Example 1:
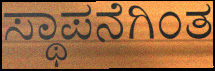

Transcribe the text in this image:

ಸ್ಥಾಪನೆಗಿಂತ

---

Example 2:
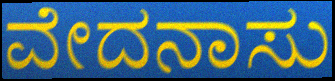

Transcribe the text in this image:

ವೇದನಾಸು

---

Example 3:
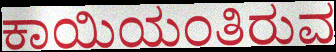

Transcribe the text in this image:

ಕಾಯಿಯಂತಿರುವ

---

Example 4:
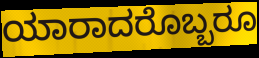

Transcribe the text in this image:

ಯಾರಾದರೊಬ್ಬರೂ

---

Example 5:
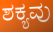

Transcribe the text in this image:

ಶಕ್ಯವು